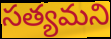
సత్యమని